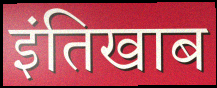
इंतिखाब